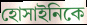
হোসাইনিকে